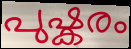
പുഷ്കരം